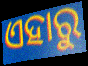
ଏହାରୁ